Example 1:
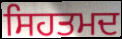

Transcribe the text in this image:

ਸਿਹਤਮਦ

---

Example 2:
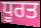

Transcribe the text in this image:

ਧੂਰਤ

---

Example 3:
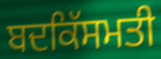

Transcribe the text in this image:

ਬਦਕਿੱਸਮਤੀ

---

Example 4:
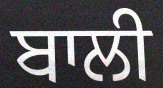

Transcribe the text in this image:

ਬਾਲੀ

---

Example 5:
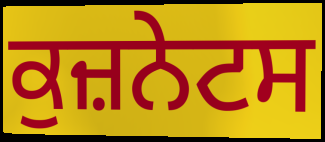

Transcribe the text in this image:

ਕੁਜ਼ਨੇਟਸ